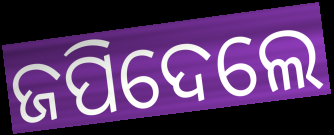
ଜପିଦେଲେ